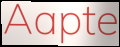
Aapte